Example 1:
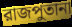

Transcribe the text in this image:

রাজপুতানা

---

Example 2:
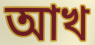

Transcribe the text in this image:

আখ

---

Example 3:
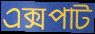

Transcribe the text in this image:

এক্সপাট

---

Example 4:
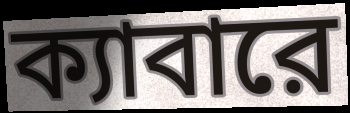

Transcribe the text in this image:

ক্যাবারে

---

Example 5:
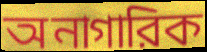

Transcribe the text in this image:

অনাগারিক